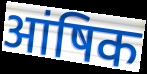
आंषिक